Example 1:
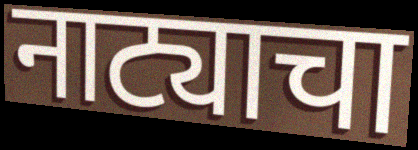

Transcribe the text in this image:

नाट्याचा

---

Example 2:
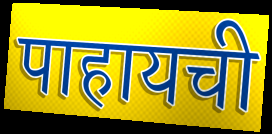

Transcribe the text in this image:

पाहायची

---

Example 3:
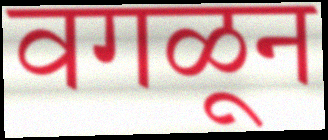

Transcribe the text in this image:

वगळून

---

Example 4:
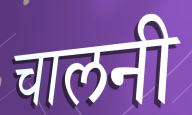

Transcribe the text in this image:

चालनी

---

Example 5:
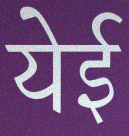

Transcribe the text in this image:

येई